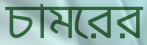
চামরের